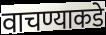
वाचण्याकडे